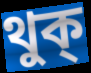
থুক্